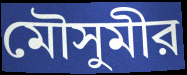
মৌসুমীর